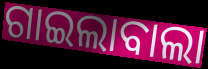
ଗାଇଲାବାଲା